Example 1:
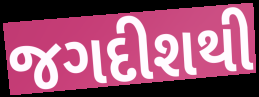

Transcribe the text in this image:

જગદીશથી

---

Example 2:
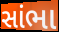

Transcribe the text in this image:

સાંભા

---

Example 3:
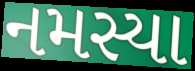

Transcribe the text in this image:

નમસ્યા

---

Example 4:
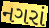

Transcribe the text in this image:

નગરાં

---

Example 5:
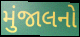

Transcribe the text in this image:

મુંજાલનો